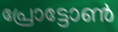
പ്രോട്ടോൺ